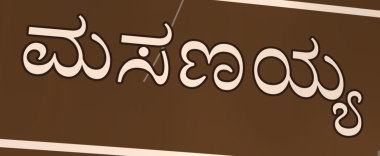
ಮಸಣಯ್ಯ